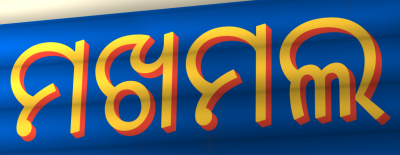
ମଖମଲ